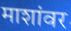
माशांवर